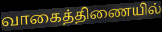
வாகைத்திணையில்